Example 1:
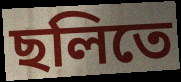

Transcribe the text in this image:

ছলিতে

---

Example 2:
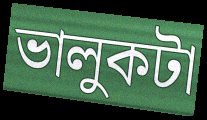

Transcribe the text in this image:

ভালুকটা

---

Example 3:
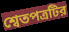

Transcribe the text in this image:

শ্বেতপত্রটির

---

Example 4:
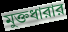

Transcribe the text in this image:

মুক্তধারার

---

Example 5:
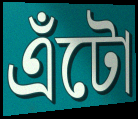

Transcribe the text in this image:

এঁটো